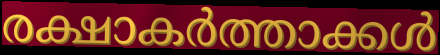
രക്ഷാകർത്താക്കൾ